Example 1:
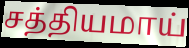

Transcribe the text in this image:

சத்தியமாய்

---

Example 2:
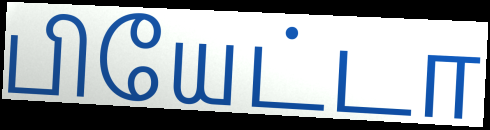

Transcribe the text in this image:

பியேட்டா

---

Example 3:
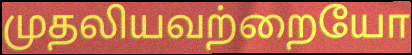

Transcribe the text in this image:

முதலியவற்றையோ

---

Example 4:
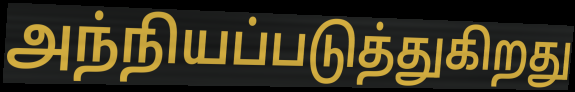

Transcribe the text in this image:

அந்நியப்படுத்துகிறது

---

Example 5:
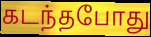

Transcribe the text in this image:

கடந்தபோது